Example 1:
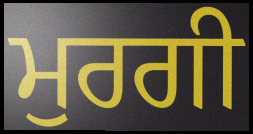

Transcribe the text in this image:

ਮੁਰਗੀ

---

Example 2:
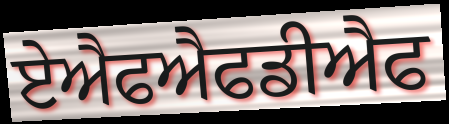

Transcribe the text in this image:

ਏਐਫਐਫਡੀਐਫ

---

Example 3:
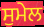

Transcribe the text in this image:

ਸੁਮੇਲ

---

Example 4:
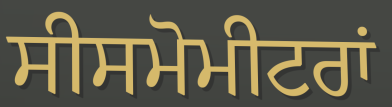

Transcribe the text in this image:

ਸੀਸਮੋਮੀਟਰਾਂ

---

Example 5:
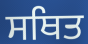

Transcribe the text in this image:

ਸਥਿਤ